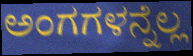
ಅಂಗಗಳನ್ನೆಲ್ಲ